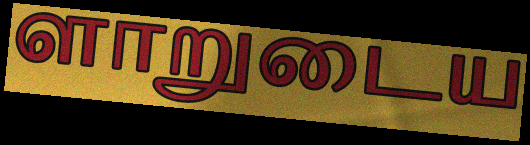
ளாறுடைய